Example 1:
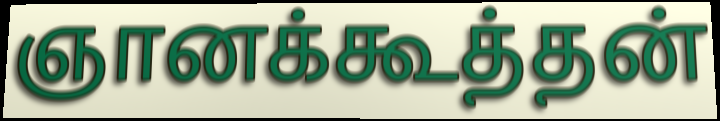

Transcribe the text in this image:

ஞானக்கூத்தன்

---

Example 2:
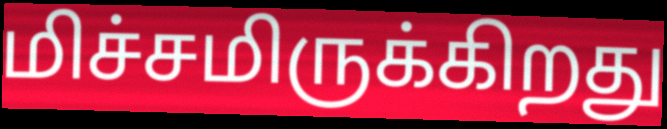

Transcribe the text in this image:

மிச்சமிருக்கிறது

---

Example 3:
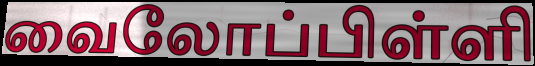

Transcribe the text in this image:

வைலோப்பிள்ளி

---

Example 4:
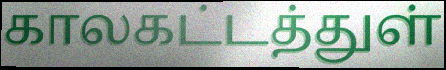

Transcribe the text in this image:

காலகட்டத்துள்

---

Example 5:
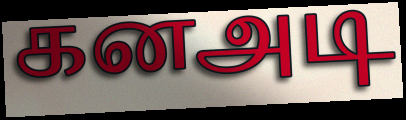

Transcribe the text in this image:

கனஅடி